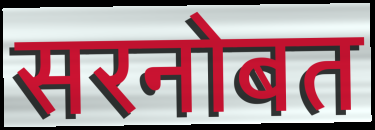
सरनोबत